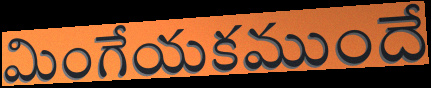
మింగేయకముందే